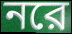
নরে